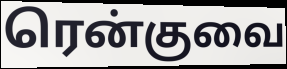
ரென்குவை